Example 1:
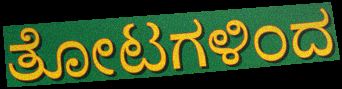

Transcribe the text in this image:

ತೋಟಗಳಿಂದ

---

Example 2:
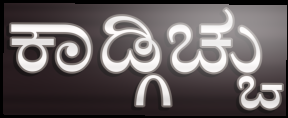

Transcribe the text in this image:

ಕಾಡ್ಗಿಚ್ಚು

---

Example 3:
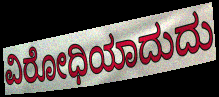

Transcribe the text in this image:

ವಿರೋಧಿಯಾದುದು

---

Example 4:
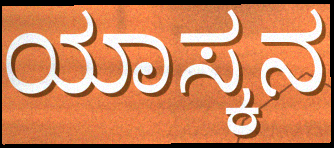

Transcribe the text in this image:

ಯಾಸ್ಕನ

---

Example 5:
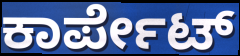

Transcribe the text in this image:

ಕಾರ್ಪೇಟ್